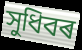
সুধিবৰ